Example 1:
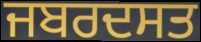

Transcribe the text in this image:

ਜਬਰਦਸਤ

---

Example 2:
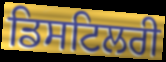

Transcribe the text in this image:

ਡਿਸਟਿਲਰੀ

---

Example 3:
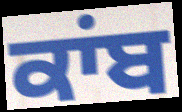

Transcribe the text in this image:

ਕਾਂਬ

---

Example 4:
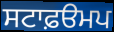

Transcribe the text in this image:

ਸਟਾਫ਼ੳਮਪ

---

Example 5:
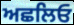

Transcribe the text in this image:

ਅਛਲਿਓ